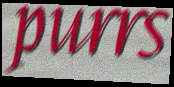
purrs